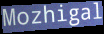
Mozhigal